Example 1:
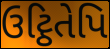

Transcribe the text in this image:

ઉટ્ઠિતેપિ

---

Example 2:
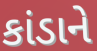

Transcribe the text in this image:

કાંડાને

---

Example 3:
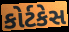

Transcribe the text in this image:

કોર્ટકેસ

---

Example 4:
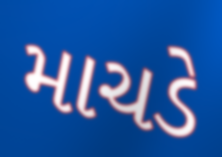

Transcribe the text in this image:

માચડે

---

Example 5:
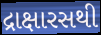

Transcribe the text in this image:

દ્રાક્ષારસથી